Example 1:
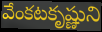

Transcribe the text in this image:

వేంకటకృష్ణుని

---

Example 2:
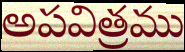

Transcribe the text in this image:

అపవిత్రము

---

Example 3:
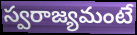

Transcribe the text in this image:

స్వరాజ్యమంటే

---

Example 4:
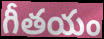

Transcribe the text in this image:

గీతయం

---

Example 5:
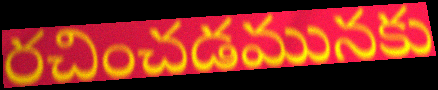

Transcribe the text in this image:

రచించడమునకు